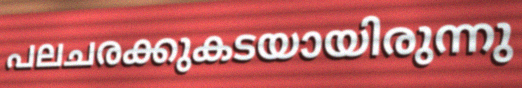
പലചരക്കുകടയായിരുന്നു